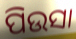
ପିଉସା